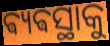
ଵ୍ୟଵସ୍ଥାକୁ